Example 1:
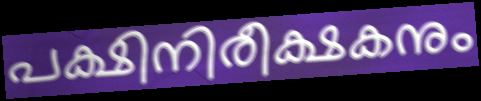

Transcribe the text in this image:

പക്ഷിനിരീക്ഷകനും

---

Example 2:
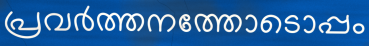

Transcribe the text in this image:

പ്രവർത്തനത്തോടൊപ്പം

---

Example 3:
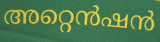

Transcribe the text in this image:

അറ്റെൻഷൻ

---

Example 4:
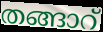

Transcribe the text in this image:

തങ്ങാറ്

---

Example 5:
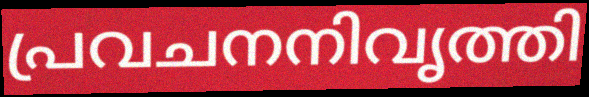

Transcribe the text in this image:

പ്രവചനനിവൃത്തി